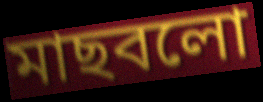
মাছবলো